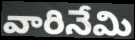
వారినేమి